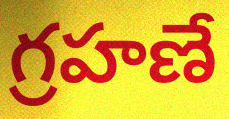
గ్రహణే